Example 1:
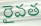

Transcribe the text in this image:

రైవత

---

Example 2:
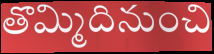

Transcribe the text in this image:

తొమ్మిదినుంచి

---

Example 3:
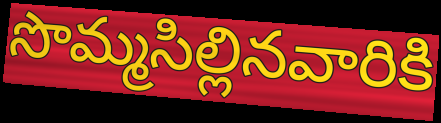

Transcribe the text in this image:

సొమ్మసిల్లినవారికి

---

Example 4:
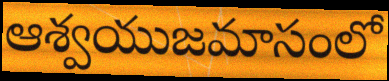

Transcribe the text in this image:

ఆశ్వయుజమాసంలో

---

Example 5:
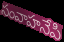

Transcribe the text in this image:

సంవాహనేపి